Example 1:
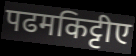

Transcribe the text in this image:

पढमकिट्टीए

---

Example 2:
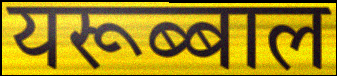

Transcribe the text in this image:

यरूब्बाल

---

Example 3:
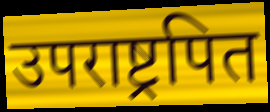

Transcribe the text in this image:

उपराष्ट्रपित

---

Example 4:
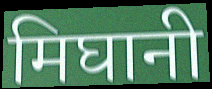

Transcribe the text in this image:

मिघानी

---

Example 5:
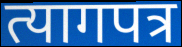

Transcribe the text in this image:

त्‍यागपत्र